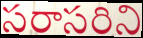
సరాసరిని